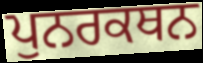
ਪੁਨਰਕਥਨ